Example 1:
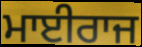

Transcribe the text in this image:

ਮਾਈਰਾਜ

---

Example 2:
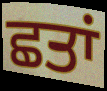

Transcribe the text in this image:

ਛਤਾਂ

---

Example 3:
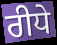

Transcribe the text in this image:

ਰੀਧੇ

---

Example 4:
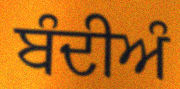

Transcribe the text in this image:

ਬੰਦੀਅੰ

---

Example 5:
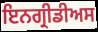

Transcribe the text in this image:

ਇਨਗ੍ਰੀਡੀਅਸ